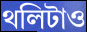
থলিটাও